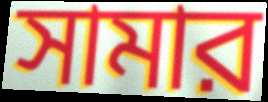
সামার